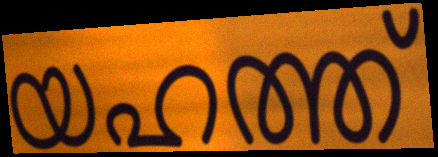
യഹത്ത്